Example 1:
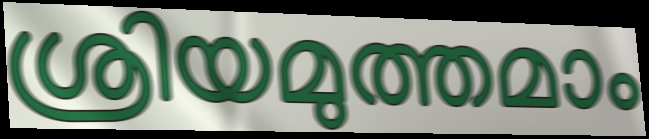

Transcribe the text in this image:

ശ്രിയമുത്തമാം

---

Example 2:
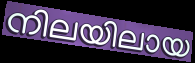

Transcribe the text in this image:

നിലയിലായ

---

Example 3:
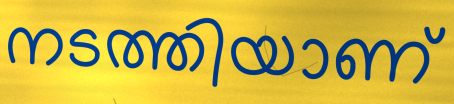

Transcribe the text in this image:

നടത്തിയാണ്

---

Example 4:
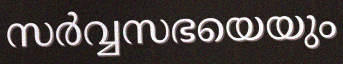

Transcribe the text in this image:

സർവ്വസഭയെയും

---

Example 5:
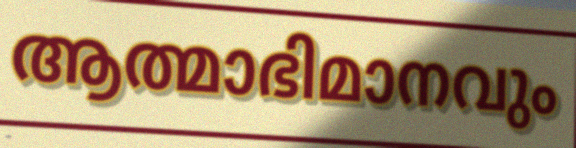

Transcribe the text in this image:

ആത്മാഭിമാനവും